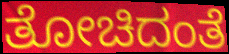
ತೋಚಿದಂತೆ